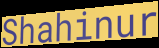
Shahinur